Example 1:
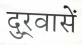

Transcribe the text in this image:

दुर्वासें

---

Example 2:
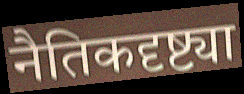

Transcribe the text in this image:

नैतिकदृष्ट्या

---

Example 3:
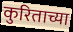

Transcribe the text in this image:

कुरिताच्या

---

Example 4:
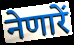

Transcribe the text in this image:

नेणारें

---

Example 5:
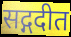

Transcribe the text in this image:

सद्गदीत